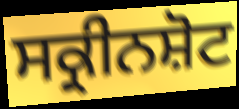
ਸਕ੍ਰੀਨਸ਼ੋਟ